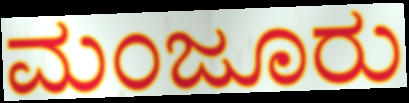
ಮಂಜೂರು